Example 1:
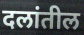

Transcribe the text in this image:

दलांतील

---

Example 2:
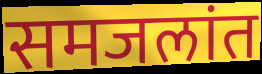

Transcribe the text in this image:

समजलांत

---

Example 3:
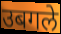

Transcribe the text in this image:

उबगले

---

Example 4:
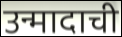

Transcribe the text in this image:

उन्मादाची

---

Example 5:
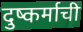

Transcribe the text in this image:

दुष्कर्माची